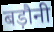
बड़ौनी